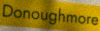
Donoughmore